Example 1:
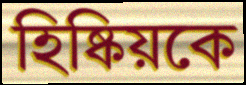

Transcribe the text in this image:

হিষ্কিয়কে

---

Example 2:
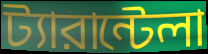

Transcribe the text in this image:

ট্যারান্টেলা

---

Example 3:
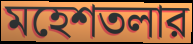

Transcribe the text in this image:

মহেশতলার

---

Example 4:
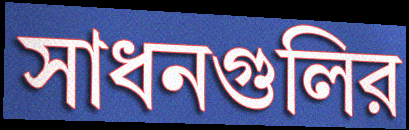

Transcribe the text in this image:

সাধনগুলির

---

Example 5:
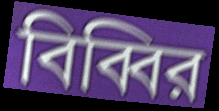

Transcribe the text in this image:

বিব্বির